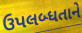
ઉપલબ્ધતાને